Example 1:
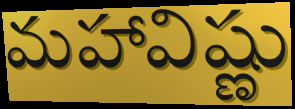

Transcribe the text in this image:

మహావిష్ణు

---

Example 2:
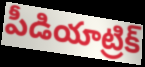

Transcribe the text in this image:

పీడియాట్రిక్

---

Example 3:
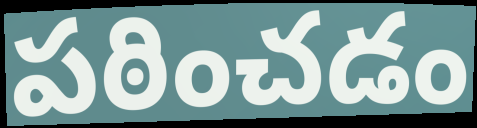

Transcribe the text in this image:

పఠించడం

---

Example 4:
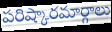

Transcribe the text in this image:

పరిష్కారమార్గాలు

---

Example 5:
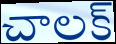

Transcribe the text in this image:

చాలక్